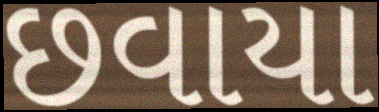
છવાયા